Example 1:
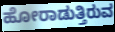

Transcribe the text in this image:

ಹೋರಾಡುತ್ತಿರುವ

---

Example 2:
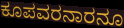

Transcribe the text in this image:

ಕೂಪವರನಾರನೂ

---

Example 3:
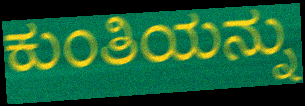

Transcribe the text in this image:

ಕುಂತಿಯನ್ನು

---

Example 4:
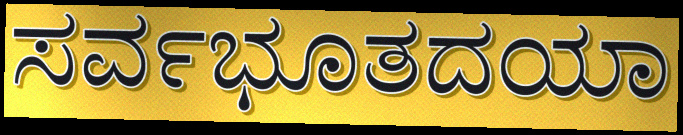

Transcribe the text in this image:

ಸರ್ವಭೂತದಯಾ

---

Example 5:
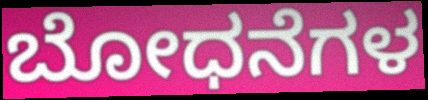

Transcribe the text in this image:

ಬೋಧನೆಗಳ